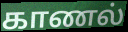
காணல்